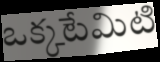
ఒక్కటేమిటి